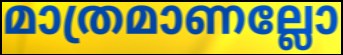
മാത്രമാണല്ലോ